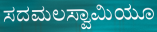
ಸದಮಲಸ್ವಾಮಿಯೂ